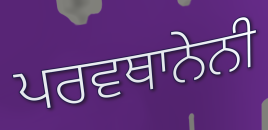
ਪਰਵਥਾਨੇਨੀ